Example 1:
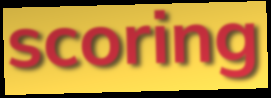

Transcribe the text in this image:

scoring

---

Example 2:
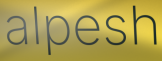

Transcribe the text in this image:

alpesh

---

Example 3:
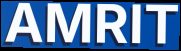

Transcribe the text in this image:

AMRIT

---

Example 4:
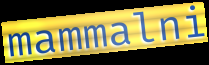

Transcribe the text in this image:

mammalni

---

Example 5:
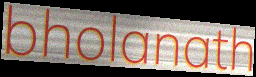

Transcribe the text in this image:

bholanath